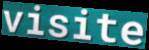
visite